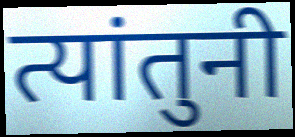
त्यांतुनी